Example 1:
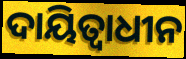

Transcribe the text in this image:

ଦାୟିତ୍ଵାଧୀନ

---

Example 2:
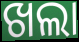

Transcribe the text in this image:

ଖଲା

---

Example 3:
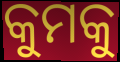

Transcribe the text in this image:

କୁମକୁ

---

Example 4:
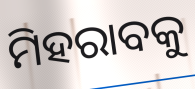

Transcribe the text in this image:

ମିହରାବକୁ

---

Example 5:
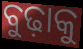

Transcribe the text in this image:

ବୁଢ଼ାକୁ